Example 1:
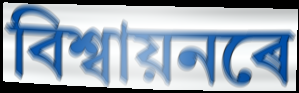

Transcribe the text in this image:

বিশ্বায়নৰে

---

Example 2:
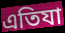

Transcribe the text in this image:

এতিযা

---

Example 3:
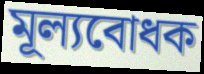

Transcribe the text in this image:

মূল্যবোধক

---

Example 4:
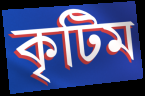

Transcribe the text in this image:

কৃটিম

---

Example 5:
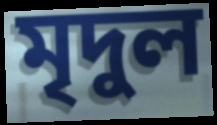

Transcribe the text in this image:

মৃদুল